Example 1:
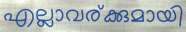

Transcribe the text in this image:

എല്ലാവര്ക്കുമായി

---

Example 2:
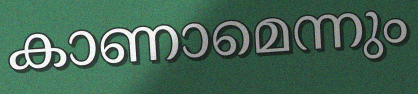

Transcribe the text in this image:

കാണാമെന്നും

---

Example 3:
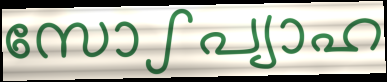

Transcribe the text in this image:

സോഽപ്യാഹ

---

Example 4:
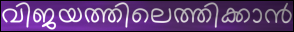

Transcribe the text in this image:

വിജയത്തിലെത്തിക്കാൻ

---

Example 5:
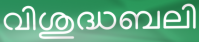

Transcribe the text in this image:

വിശുദ്ധബലി